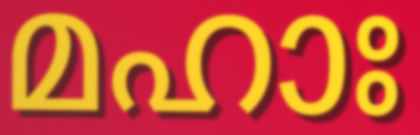
മഹാഃ